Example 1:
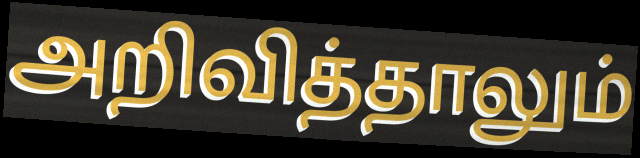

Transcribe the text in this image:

அறிவித்தாலும்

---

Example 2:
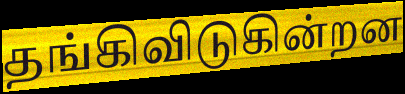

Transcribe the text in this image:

தங்கிவிடுகின்றன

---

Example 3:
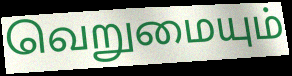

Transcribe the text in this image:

வெறுமையும்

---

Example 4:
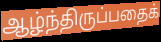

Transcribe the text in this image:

ஆழ்ந்திருப்பதைக்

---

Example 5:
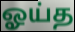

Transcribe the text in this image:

ஓய்த